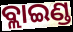
ବ୍ଲାଇଣ୍ଡ